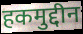
हकमुद्दीन